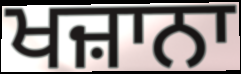
ਖਜ਼ਾਨਾ